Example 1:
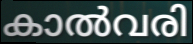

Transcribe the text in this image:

കാൽവരി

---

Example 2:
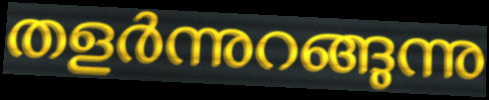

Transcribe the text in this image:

തളർന്നുറങ്ങുന്നു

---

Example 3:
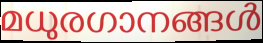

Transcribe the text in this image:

മധുരഗാനങ്ങൾ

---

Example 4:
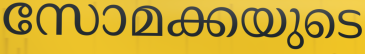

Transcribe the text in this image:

സോമക്കയുടെ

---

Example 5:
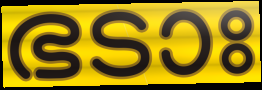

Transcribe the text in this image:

ഭടാഃ